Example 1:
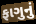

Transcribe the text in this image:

ફાગુનું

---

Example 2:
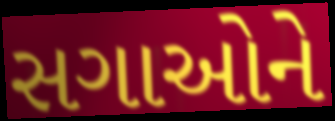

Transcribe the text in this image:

સગાઓને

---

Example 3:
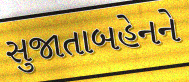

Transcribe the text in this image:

સુજાતાબહેનને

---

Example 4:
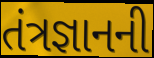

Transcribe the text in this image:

તંત્રજ્ઞાનની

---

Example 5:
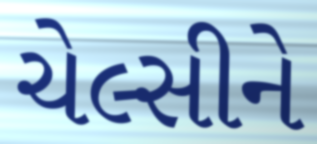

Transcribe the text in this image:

ચેલ્સીને